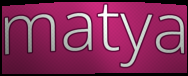
matya